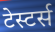
टेस्टर्स